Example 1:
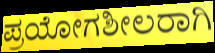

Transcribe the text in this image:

ಪ್ರಯೋಗಶೀಲರಾಗಿ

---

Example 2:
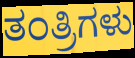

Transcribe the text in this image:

ತಂತ್ರಿಗಳು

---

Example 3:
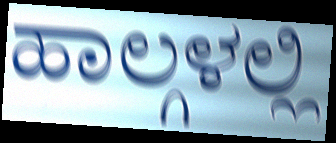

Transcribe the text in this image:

ಹಾಲ್ಗಳಲ್ಲಿ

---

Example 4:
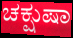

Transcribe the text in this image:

ಚಕ್ಷುಷಾ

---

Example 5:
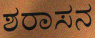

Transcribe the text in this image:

ಶರಾಸನ